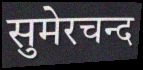
सुमेरचन्द